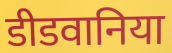
डीडवानिया